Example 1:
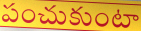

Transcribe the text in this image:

పంచుకుంటా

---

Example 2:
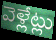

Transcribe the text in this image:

వెళ్లేట్లు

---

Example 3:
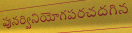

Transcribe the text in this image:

పునర్వినియోగపరచదగిన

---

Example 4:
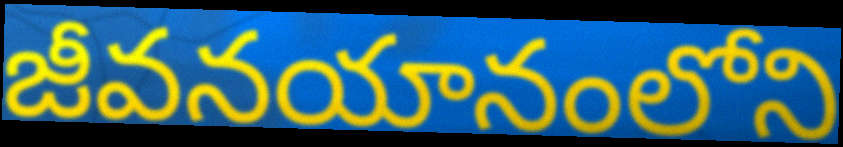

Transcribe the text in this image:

జీవనయానంలోని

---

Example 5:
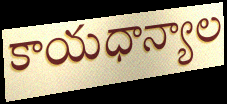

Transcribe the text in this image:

కాయధాన్యాల